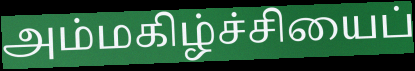
அம்மகிழ்ச்சியைப்